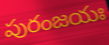
పురంజయః